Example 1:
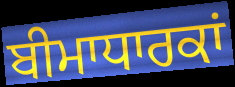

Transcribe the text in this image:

ਬੀਮਾਧਾਰਕਾਂ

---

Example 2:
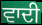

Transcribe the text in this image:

ਵਾਦੀ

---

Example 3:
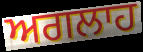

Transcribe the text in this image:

ਅਗਲਾਹ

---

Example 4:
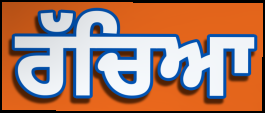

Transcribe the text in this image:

ਰੱਚਿਆ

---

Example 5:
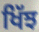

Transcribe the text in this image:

ਖਿੱਝ